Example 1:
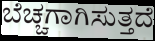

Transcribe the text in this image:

ಬೆಚ್ಚಗಾಗಿಸುತ್ತದೆ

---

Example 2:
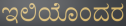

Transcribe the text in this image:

ಇಲಿಯೊಂದರ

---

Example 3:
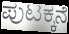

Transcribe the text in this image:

ಪುಟಕ್ಕನೆ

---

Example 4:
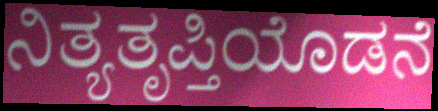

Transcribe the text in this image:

ನಿತ್ಯತೃಪ್ತಿಯೊಡನೆ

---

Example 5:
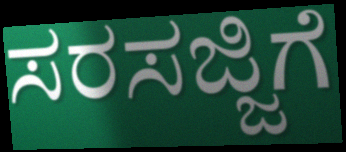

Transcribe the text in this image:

ಸರಸಜ್ಜಿಗೆ